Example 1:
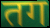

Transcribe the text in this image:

तग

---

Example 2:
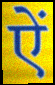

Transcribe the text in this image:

ऐं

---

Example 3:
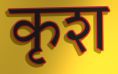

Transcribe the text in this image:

कृश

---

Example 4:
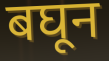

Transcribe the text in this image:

बघून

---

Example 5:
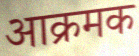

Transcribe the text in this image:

आक्रमक